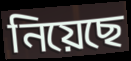
নিয়েছে